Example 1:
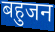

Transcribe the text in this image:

बहुजन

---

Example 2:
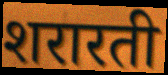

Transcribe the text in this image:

शरारती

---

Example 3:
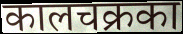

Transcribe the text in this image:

कालचक्रका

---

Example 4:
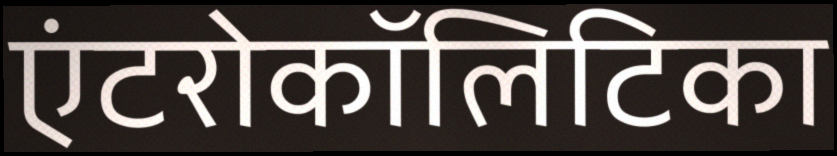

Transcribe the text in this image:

एंटरोकॉलिटिका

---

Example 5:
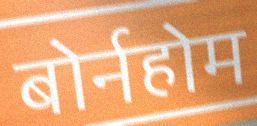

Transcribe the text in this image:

बोर्नहोम